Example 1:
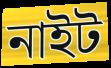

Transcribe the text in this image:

নাইট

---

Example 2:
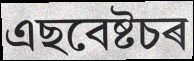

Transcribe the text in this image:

এছবেষ্টচৰ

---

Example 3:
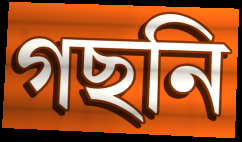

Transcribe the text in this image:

গছনি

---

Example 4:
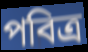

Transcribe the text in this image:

পবিত্ৰ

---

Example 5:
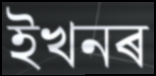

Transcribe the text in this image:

ইখনৰ